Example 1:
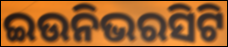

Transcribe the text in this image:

ଇଉନିଭରସିଟି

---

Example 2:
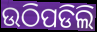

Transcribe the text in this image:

ଉଠିପଡିଲି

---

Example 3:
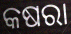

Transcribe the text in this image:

କଷରା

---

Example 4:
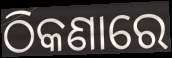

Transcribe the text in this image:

ଠିକଣାରେ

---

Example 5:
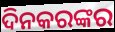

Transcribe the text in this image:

ଦିନକରଙ୍କର